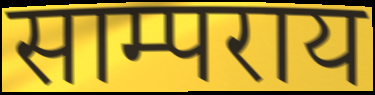
साम्पराय